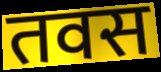
तवस